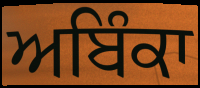
ਅਬਿੰਕਾ